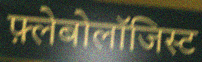
फ़्लेबोलॉजिस्ट